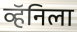
व्हॅनिला